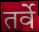
तर्वे